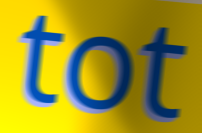
tot